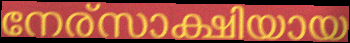
നേര്സാക്ഷിയായ